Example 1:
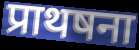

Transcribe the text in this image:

प्राथषना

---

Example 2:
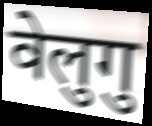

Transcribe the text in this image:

वेलुगु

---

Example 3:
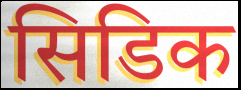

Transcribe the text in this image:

सिडिक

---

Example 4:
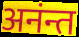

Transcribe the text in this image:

अनंन्त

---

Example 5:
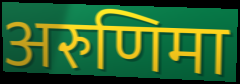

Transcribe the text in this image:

अरुणिमा